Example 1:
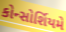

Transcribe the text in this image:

કોન્સોર્શિયમે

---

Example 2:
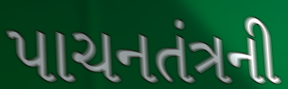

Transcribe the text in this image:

પાચનતંત્રની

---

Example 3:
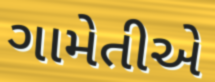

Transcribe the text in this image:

ગામેતીએ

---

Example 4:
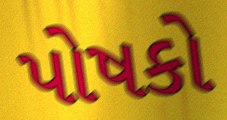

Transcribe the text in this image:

પોષકો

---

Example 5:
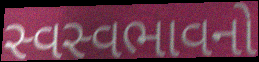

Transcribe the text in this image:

સ્વસ્વભાવનો